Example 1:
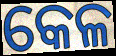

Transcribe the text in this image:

କେଳ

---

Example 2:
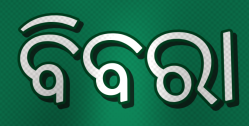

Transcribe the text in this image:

ବିବରା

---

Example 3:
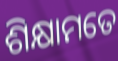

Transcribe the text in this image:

ଶିକ୍ଷାମତେ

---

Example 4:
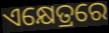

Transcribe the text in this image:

ଏକ୍ଷେତ୍ରରେ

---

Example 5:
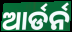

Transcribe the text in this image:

ଆର୍ଡର୍ନ